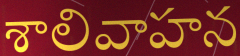
శాలివాహన